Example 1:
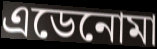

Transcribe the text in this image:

এডেনোমা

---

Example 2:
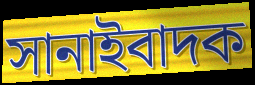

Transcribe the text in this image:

সানাইবাদক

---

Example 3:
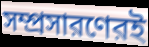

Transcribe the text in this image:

সম্প্রসারণেরই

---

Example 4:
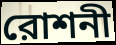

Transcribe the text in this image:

রোশনী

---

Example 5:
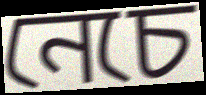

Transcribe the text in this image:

নেচে